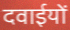
दवाईयों